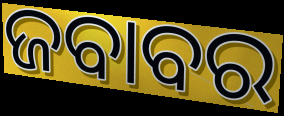
ଜବାବର